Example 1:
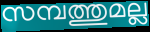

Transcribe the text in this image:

സമ്പത്തുമല്ല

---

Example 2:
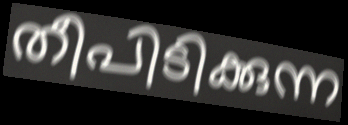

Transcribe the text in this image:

തീപിടിക്കുന്ന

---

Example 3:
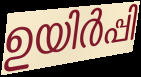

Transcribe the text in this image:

ഉയിർപ്പി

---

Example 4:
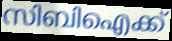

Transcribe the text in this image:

സിബിഐക്ക്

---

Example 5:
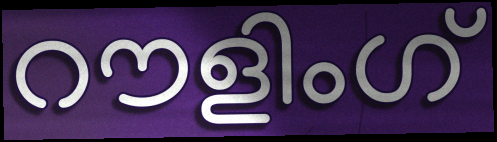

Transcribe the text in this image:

റൗളിംഗ്